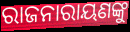
ରାଜନାରାୟଣଙ୍କୁ